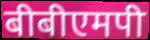
बीबीएमपी